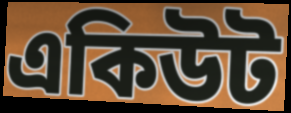
একিউট